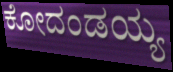
ಕೋದಂಡಯ್ಯ